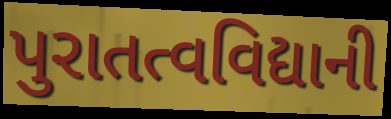
પુરાતત્વવિદ્યાની